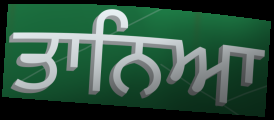
ਤਾਨਿਆ